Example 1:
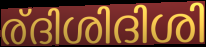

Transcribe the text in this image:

ര്ദിശിദിശി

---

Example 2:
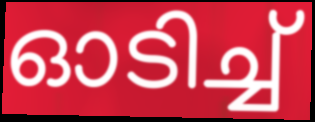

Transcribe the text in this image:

ഓടിച്ച്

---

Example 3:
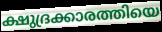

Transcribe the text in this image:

ക്ഷുദ്രക്കാരത്തിയെ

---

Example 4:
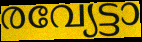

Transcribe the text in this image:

രവ്യേട്ടാ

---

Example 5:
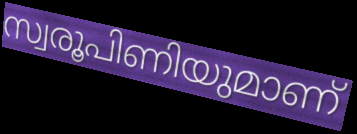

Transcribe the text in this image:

സ്വരൂപിണിയുമാണ്